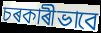
চৰকাৰীভাবে